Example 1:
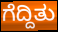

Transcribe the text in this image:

ಗೆದ್ದಿತು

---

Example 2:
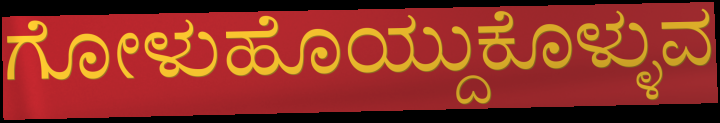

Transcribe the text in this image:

ಗೋಳುಹೊಯ್ದುಕೊಳ್ಳುವ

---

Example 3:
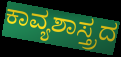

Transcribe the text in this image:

ಕಾವ್ಯಶಾಸ್ತ್ರದ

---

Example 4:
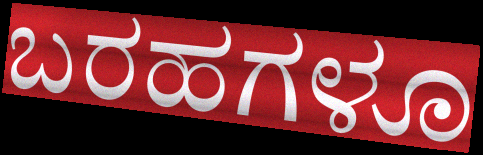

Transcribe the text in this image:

ಬರಹಗಳೂ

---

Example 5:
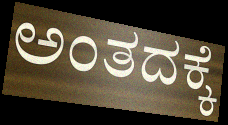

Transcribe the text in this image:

ಅಂತದಕ್ಕೆ